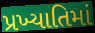
પ્રખ્યાતિમાં